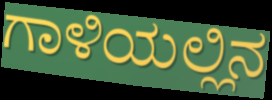
ಗಾಳಿಯಲ್ಲಿನ